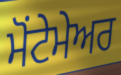
ਮੋਂਟੇਮੇਅਰ